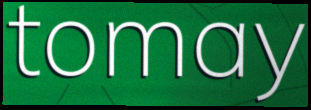
tomay